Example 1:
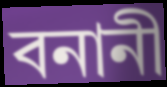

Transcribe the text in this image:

বনানী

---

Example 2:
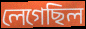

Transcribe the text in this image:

লেগেছিল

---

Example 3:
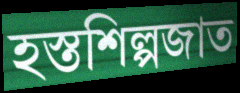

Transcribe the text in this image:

হস্তশিল্পজাত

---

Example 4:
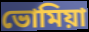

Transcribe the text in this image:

ভোমিয়া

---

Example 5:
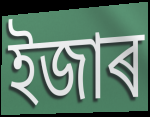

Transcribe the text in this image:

ইজাৰ